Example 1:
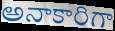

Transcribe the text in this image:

అనాకారిగా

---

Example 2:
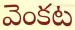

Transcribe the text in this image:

వెంకట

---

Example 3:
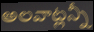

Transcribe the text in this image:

అలవాట్లన్నీ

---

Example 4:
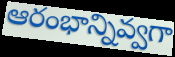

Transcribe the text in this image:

ఆరంభాన్నివ్వగా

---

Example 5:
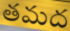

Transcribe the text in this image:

తమద